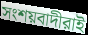
সংশয়বাদীরাই